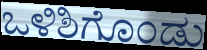
ಒಳಿಶಿಗೊಂಡು